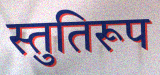
स्तुतिरूप